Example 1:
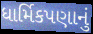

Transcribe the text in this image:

ધાર્મિકપણાનું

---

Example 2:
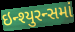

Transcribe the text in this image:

ઇન્શ્યુરન્સમાં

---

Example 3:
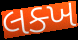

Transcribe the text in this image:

લક્ખ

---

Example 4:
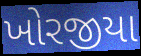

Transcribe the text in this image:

ખોરજીયા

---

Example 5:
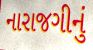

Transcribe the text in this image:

નારાજગીનું